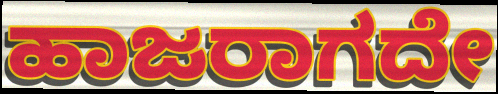
ಹಾಜರಾಗದೇ